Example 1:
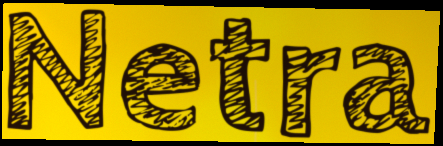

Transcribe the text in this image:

Netra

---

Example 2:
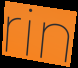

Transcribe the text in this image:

rin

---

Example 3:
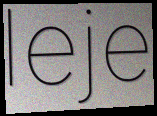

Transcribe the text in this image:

leje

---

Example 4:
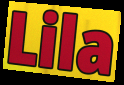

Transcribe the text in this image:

Lila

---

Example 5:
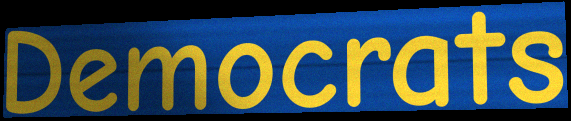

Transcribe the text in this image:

Democrats